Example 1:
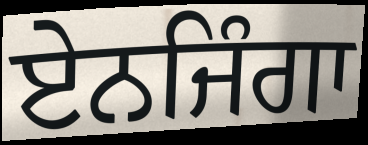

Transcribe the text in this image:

ਏਨਜਿੰਗਾ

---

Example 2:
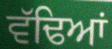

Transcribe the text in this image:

ਵੱਢਿਆਂ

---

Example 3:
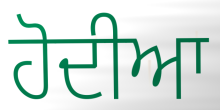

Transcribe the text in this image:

ਹੋਦੀਆ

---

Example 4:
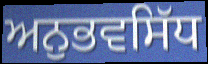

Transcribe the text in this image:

ਅਨੁਭਵਸਿੱਧ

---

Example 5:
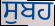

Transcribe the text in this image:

ਸੁਬਹ